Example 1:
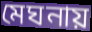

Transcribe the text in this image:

মেঘনায়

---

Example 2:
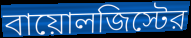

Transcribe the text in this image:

বায়োলজিস্টের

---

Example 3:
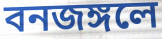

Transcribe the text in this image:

বনজঙ্গলে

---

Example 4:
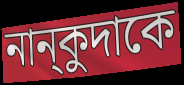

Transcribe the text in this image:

নান্‌কুদাকে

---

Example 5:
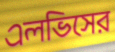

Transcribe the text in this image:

এলভিসের